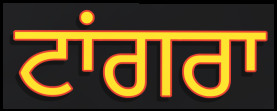
ਟਾਂਗਰਾ